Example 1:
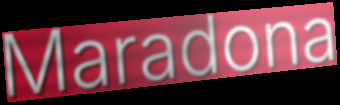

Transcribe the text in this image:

Maradona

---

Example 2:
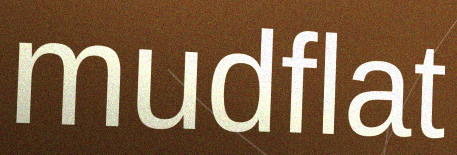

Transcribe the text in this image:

mudflat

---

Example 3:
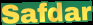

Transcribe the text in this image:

Safdar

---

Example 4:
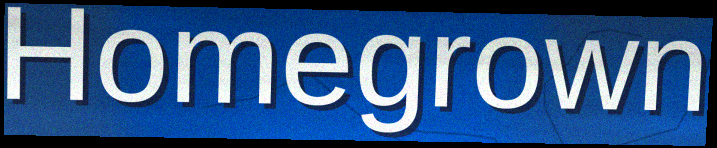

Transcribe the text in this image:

Homegrown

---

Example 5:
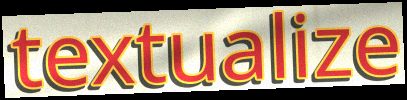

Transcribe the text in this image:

textualize